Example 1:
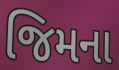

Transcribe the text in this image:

જિમના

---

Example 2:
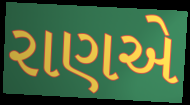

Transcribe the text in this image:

રાણએ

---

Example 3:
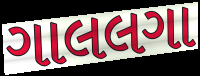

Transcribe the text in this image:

ગાલલગા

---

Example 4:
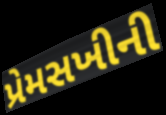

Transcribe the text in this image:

પ્રેમસખીની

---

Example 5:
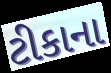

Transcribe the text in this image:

ટીકાના